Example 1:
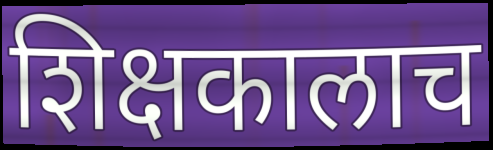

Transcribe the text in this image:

शिक्षकालाच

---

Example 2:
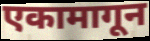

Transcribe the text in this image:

एकामागून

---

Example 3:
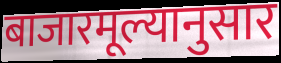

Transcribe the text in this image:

बाजारमूल्यानुसार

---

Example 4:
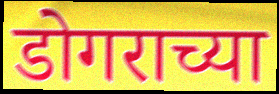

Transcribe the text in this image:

डोगराच्या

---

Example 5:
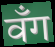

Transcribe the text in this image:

वँग